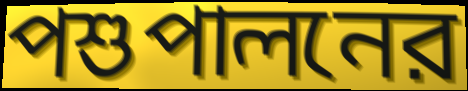
পশুপালনের